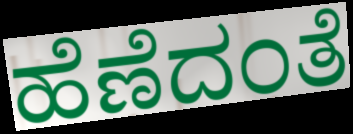
ಹೆಣೆದಂತೆ